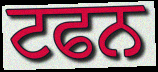
ਟਫਨ